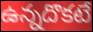
ఉన్నదొకటే